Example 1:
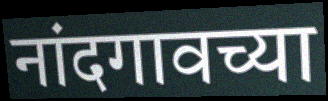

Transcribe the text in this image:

नांदगावच्या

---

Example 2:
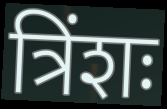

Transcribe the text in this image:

त्रिंशः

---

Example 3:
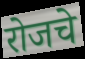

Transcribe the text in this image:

रोजचे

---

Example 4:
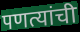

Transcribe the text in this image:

पणत्यांची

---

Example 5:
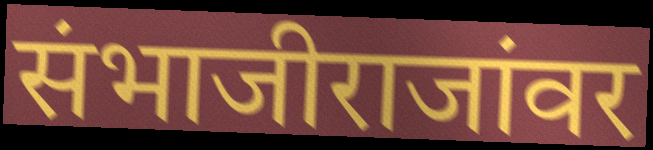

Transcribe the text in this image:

संभाजीराजांवर